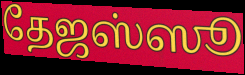
தேஜஸ்ஸூ